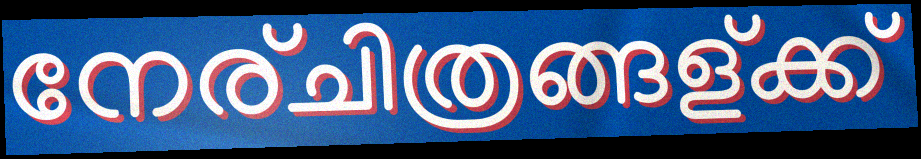
നേര്ചിത്രങ്ങള്ക്ക്